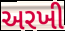
અરખી